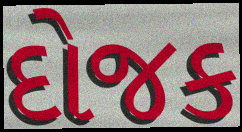
દોજક